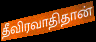
தீவிரவாதிதான்